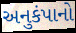
અનુકંપાનો